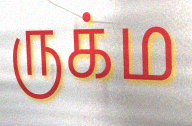
ருக்ம